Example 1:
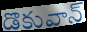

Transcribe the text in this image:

డొకువాన్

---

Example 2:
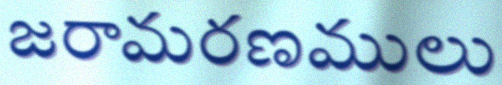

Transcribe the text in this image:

జరామరణములు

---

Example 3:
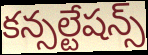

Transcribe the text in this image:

కన్సల్టేషన్స్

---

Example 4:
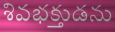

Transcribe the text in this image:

శివభక్తుడను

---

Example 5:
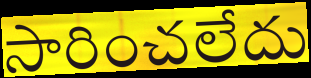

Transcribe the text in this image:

సారించలేదు